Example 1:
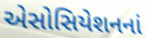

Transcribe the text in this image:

એસોસિયેશનનાં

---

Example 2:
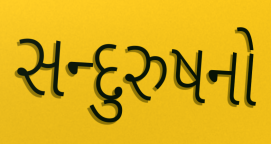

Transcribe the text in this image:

સન્દુરુષનો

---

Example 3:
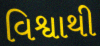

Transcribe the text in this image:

વિશ્વાથી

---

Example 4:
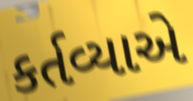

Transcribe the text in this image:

કર્તવ્યાએ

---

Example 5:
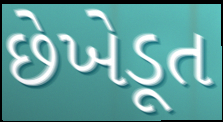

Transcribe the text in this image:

છેખેડૂત